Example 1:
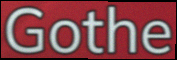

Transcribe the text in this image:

Gothe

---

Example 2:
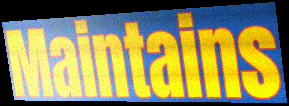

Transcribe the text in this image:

Maintains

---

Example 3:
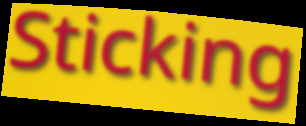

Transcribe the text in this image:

Sticking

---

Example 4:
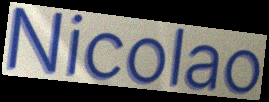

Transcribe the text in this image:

Nicolao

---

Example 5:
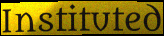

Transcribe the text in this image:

Instituted